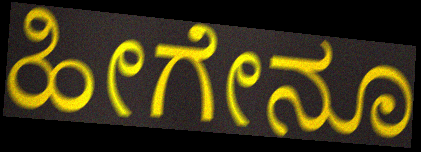
ಹೀಗೇನೂ